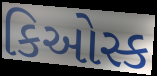
કિઓસ્ક